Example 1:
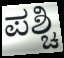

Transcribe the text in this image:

ಪಶ್ಚಿ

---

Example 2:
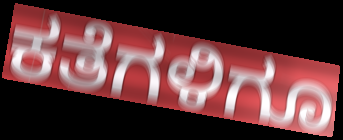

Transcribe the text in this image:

ಕತೆಗಳಿಗೂ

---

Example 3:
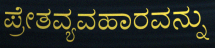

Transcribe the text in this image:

ಪ್ರೇತವ್ಯವಹಾರವನ್ನು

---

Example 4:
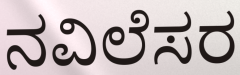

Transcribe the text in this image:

ನವಿಲೆಸರ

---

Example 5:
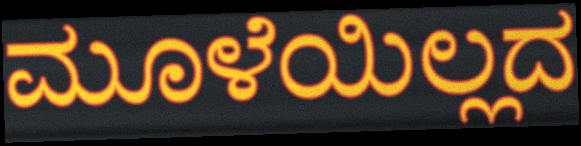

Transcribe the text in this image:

ಮೂಳೆಯಿಲ್ಲದ